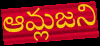
ఆమ్లజని